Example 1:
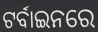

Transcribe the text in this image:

ଟର୍ବାଇନରେ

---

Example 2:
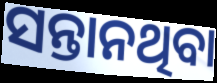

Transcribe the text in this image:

ସନ୍ତାନଥିବା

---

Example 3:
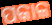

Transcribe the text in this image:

ପକାଳ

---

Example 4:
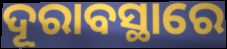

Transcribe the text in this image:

ଦୂରାବସ୍ଥାରେ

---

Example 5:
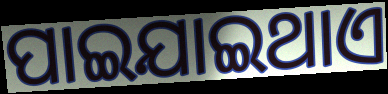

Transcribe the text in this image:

ପାଇଯାଇଥାଏ